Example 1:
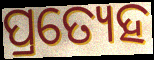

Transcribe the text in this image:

ପ୍ରତ୍ୟେହ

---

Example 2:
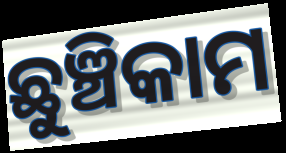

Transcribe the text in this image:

ଛୁଞ୍ଚିକାମ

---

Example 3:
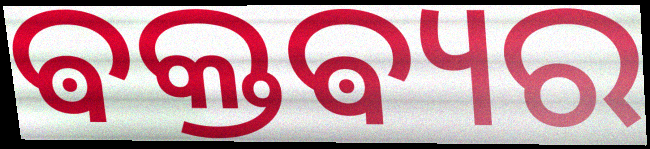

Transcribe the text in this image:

ଵକ୍ତଵ୍ୟର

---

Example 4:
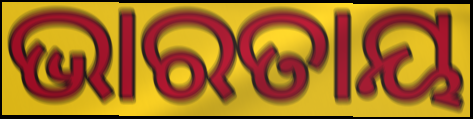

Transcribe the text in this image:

ଭାରତାୟ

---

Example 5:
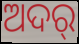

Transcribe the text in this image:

ଅଦର୍